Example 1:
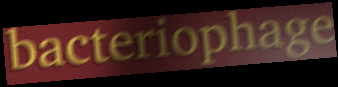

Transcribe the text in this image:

bacteriophage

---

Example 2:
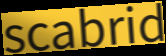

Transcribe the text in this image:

scabrid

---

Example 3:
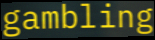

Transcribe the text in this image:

gambling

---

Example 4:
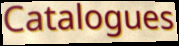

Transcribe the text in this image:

Catalogues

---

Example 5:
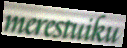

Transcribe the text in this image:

merestuiku